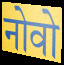
नोवो